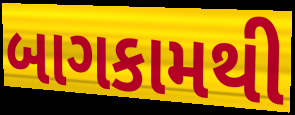
બાગકામથી